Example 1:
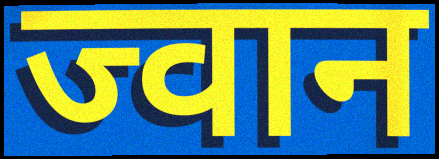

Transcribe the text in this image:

ज्वान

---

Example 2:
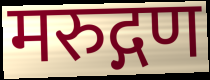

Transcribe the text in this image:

मरुद्गण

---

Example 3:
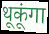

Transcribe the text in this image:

थूकूंगा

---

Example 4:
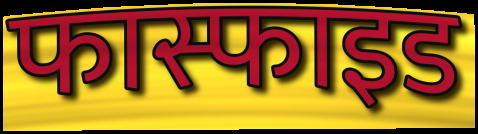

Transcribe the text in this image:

फास्फाइड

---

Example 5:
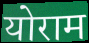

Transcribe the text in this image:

योराम